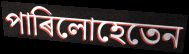
পাৰিলোহেতেন